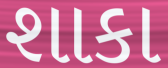
શાકા